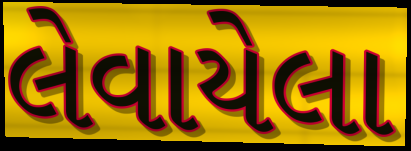
લેવાયેલા